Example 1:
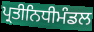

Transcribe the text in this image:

ਪ੍ਰਤੀਨਿਧੀਮੰਡਲ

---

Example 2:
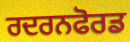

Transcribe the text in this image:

ਰਦਰਨਫੋਰਡ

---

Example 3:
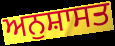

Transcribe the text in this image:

ਅਨੁਸ਼ਾਸਤ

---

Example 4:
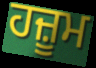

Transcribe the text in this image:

ਹਜ਼ੂਮ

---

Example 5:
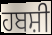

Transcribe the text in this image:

ਹਬਸ਼ੀ